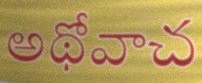
అథోవాచ